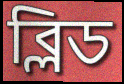
ব্লিড